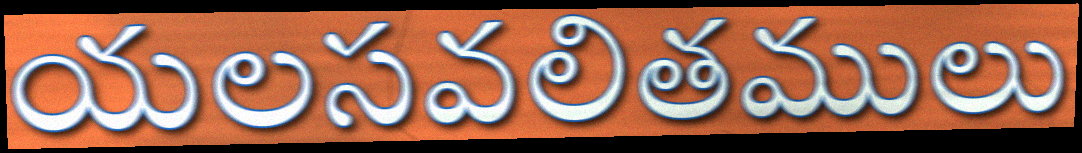
యలసవలితములు